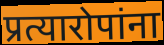
प्रत्यारोपांना